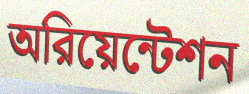
অরিয়েন্টেশন